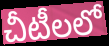
చీటీలలో